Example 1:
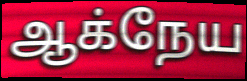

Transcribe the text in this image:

ஆக்நேய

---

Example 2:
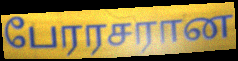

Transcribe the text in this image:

பேரரசரான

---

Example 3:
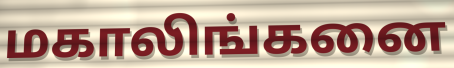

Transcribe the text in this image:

மகாலிங்கனை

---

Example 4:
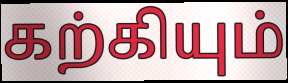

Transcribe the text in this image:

கற்கியும்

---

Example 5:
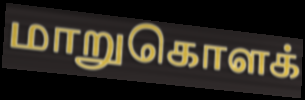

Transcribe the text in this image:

மாறுகொளக்